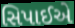
સિપાઈએ